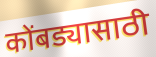
कोंबड्यासाठी